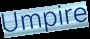
Umpire